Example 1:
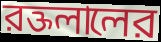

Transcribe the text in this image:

রক্তলালের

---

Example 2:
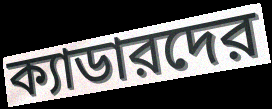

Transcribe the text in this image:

ক্যাডারদের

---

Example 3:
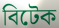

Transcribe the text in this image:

বিটেক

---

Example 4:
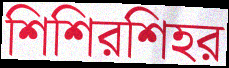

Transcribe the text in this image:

শিশিরশিহর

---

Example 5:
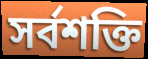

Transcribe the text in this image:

সর্বশক্তি